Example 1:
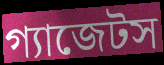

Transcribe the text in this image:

গ্যাজেটস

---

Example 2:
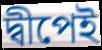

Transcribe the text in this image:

দ্বীপেই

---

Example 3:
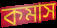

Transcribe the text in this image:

কমাস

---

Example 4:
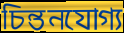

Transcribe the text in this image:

চিন্তনযোগ্য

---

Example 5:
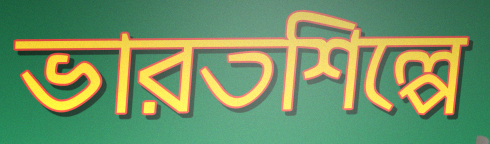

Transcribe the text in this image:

ভারতশিল্পে